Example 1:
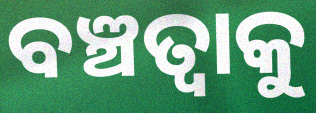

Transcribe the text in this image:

ବଞ୍ଚତ୍ବାକୁ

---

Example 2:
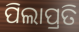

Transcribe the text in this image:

ପିଲାପ୍ରତି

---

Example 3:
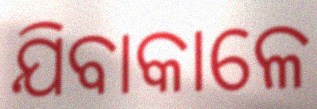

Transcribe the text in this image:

ଯିବାକାଳେ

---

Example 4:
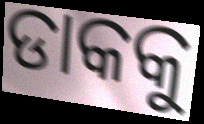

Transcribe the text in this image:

ଡାକକୁ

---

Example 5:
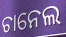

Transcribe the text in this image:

ଚାନେଲ